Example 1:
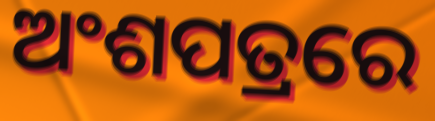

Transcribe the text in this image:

ଅଂଶପତ୍ରରେ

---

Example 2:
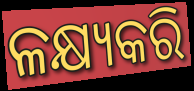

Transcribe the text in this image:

ଳକ୍ଷ୍ୟକରି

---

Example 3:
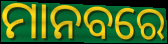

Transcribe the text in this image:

ମାନବରେ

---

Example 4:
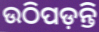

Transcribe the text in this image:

ଉଠିପଡ଼ନ୍ତି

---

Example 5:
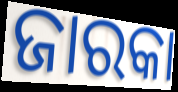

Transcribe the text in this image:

ଜାରକା